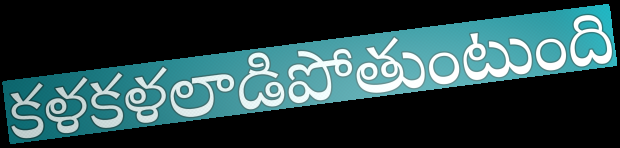
కళకళలాడిపోతుంటుంది